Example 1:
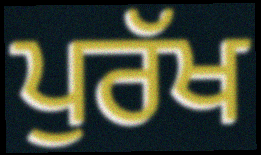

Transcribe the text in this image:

ਪੁਰੱਖ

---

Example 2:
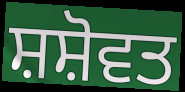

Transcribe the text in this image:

ਸ਼ਸ਼ੋਵਤ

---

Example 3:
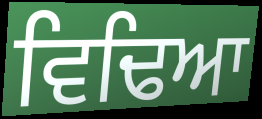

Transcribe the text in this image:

ਵਿਢਿਆ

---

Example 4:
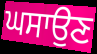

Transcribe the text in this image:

ਘਸਾਉਣ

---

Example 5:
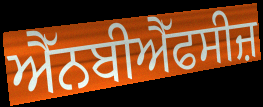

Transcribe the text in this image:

ਐੱਨਬੀਐੱਫਸੀਜ਼